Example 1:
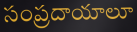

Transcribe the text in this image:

సంప్రదాయాలూ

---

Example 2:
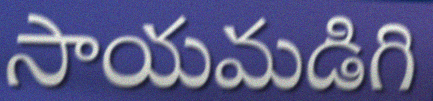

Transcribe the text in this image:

సాయమడిగి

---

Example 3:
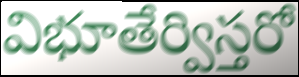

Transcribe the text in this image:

విభూతేర్విస్తరో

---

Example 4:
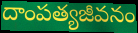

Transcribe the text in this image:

దాంపత్యజీవనం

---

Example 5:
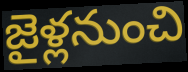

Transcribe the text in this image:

జైళ్లనుంచి